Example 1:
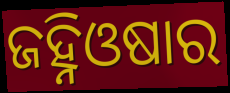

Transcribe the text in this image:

ଜହ୍ନିଓଷାର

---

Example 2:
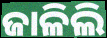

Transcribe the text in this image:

ଜାଳିଲି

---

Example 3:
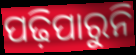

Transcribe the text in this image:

ପଢ଼ିପାରୁନି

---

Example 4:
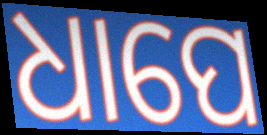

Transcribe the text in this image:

ଧାପେ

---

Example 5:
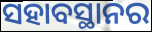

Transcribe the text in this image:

ସହାବସ୍ଥାନର